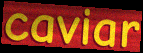
caviar